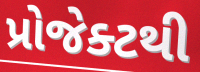
પ્રોજેક્ટથી